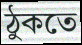
ঠুকতে